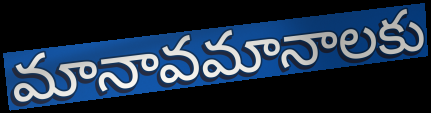
మానావమానాలకు